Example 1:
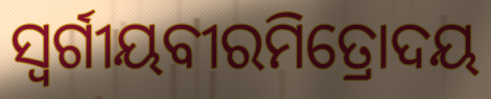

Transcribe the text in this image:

ସ୍ୱର୍ଗୀୟବୀରମିତ୍ରୋଦୟ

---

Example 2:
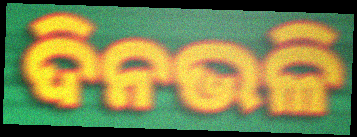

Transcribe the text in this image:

ଦିନଭଳି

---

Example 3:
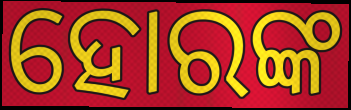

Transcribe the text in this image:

ହୋରଙ୍କ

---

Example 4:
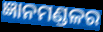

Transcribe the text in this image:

ଜ୍ଞାନମଣ୍ଡଳର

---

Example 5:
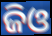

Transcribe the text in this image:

ଜିଓ